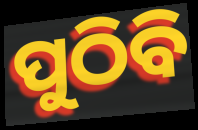
ପୁଠିବି